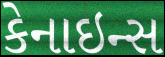
કેનાઇન્સ